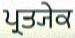
ਪ੍ਰਤ੍ਯੇਕ